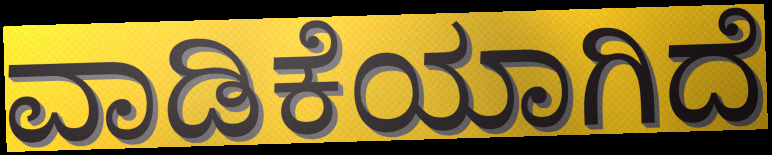
ವಾಡಿಕೆಯಾಗಿದೆ